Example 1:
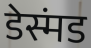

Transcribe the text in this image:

डेस्मंड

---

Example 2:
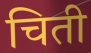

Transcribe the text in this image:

चिती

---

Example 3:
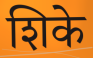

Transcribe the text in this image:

शिके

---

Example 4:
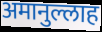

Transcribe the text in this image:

अमानुल्लाह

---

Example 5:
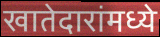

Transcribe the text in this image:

खातेदारांमध्ये